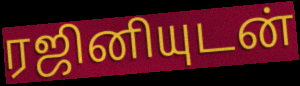
ரஜினியுடன்